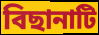
বিছানাটি